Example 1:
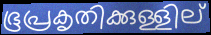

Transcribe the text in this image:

ഭൂപ്രകൃതിക്കുള്ളില്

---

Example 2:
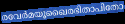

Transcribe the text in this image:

രവേർമയൂഖൈരഭിതാപിതോ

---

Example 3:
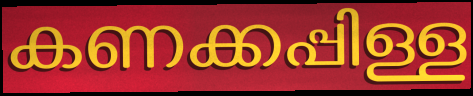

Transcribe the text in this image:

കണക്കപ്പിള്ള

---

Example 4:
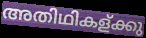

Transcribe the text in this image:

അതിഥികള്ക്കു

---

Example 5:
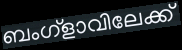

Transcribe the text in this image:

ബംഗ്ളാവിലേക്ക്